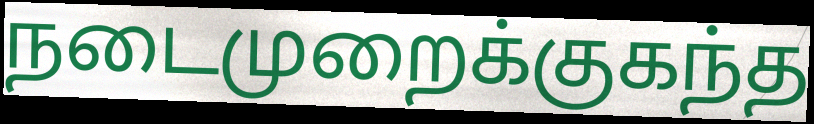
நடைமுறைக்குகந்த